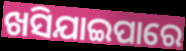
ଖସିଯାଇପାରେ